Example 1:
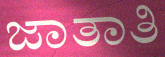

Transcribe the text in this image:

ಜಾತಾತಿ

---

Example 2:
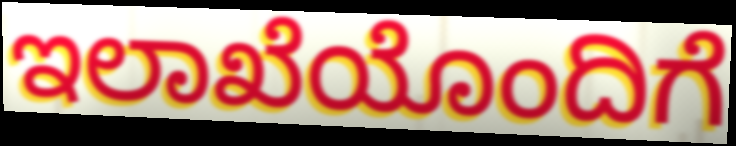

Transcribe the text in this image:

ಇಲಾಖೆಯೊಂದಿಗೆ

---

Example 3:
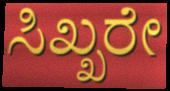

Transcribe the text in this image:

ಸಿಖ್ಖರೇ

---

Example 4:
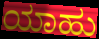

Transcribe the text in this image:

ಯಾಹು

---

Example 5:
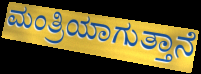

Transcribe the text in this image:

ಮಂತ್ರಿಯಾಗುತ್ತಾನೆ